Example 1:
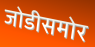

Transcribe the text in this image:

जोडीसमोर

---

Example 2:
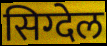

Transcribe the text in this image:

सिग्देल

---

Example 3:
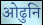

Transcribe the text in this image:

ओढुनि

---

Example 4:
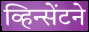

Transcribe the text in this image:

व्हिन्सेंटने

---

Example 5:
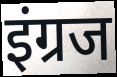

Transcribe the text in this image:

इंग्रज